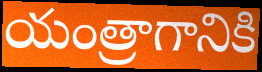
యంత్రాగానికి